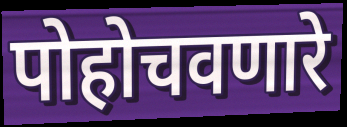
पोहोचवणारे